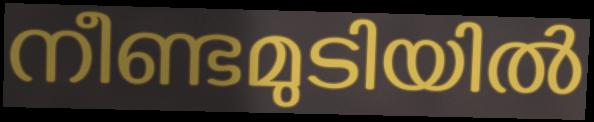
നീണ്ടമുടിയിൽ